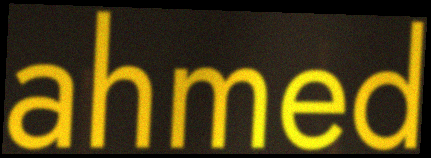
ahmed